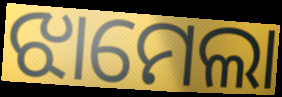
ଝାମେଲା